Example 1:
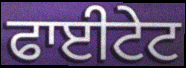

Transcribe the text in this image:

ਫਾਈਟੇਟ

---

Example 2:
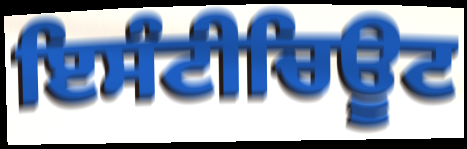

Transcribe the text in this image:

ਇਸੰਟੀਚਿਊਟ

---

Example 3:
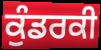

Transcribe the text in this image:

ਕੁੰਡਰਕੀ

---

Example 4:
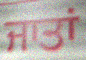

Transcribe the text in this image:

ਜਾਤਾਂ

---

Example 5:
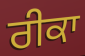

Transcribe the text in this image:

ਰੀਕਾ